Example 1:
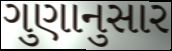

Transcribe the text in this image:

ગુણાનુસાર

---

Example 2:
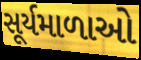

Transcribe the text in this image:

સૂર્યમાળાઓ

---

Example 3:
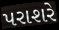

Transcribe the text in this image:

પરાશરે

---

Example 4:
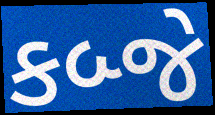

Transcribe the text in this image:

કબ્જે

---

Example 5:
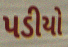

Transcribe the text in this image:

પડીયો